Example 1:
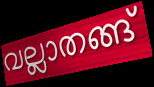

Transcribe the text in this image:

വല്ലാതങ്ങ്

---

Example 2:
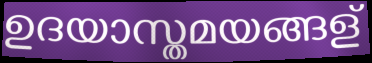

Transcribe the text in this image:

ഉദയാസ്തമയങ്ങള്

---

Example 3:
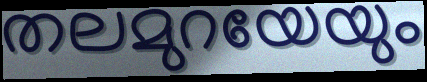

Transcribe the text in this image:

തലമുറയേയും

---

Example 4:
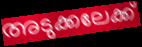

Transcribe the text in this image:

അടുക്കലേക്ക്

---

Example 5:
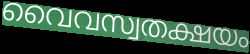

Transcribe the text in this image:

വൈവസ്വതക്ഷയം